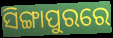
ସିଙ୍ଗାପୁରରେ